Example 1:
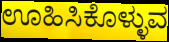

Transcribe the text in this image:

ಊಹಿಸಿಕೊಳ್ಳುವ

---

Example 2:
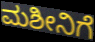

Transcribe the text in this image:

ಮಶೀನಿಗೆ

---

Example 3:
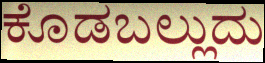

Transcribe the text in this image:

ಕೊಡಬಲ್ಲುದು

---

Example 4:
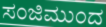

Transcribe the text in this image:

ಸಂಜಿಮುಂದ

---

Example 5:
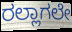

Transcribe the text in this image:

ರಲ್ಲಾಗಲೇ